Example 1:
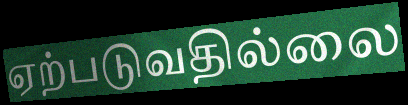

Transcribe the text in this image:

ஏற்படுவதில்லை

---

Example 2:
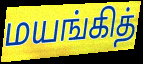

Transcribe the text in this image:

மயங்கித்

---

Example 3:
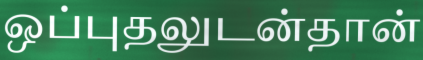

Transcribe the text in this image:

ஒப்புதலுடன்தான்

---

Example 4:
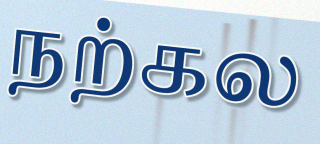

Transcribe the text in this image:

நற்கல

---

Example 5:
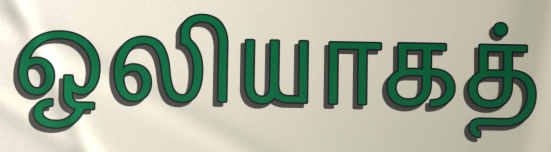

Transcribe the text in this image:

ஒலியாகத்